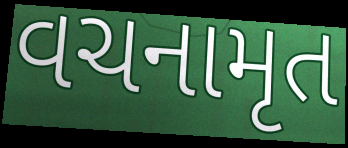
વચનામૃત